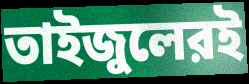
তাইজুলেরই